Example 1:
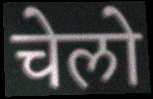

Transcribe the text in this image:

चेलो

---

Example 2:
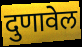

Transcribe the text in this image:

दुणावेल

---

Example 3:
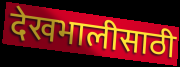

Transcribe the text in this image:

देखभालीसाठी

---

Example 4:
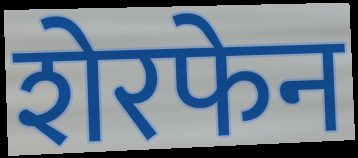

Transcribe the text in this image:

शेरफेन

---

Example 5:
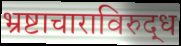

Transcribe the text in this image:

भ्रष्टाचाराविरुद्ध